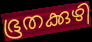
ഭൂതക്കുഴി